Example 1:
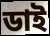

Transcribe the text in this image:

ডাই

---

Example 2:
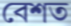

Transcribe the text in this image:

বেশত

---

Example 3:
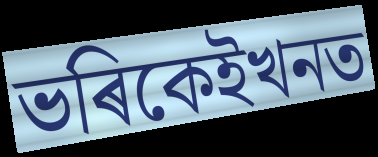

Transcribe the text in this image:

ভৰিকেইখনত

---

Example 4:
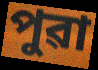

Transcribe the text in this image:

পুৱা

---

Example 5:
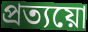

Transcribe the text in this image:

প্ৰত্যয়ো